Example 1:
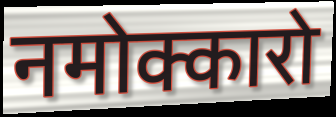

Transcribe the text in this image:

नमोक्कारो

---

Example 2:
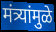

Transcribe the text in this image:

मंत्र्यांमुळे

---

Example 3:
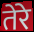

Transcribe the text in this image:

तेरे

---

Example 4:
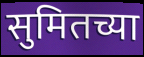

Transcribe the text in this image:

सुमितच्या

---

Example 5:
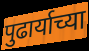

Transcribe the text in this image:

पुढार्याच्या